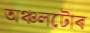
অঞ্চলটোৰ